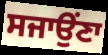
ਸਜਾਉਂਣਾ